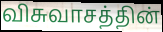
விசுவாசத்தின்